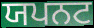
ਯਪਨਟ